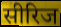
सीरिज